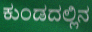
ಕುಂಡದಲ್ಲಿನ